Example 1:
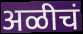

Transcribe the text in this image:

अळीचं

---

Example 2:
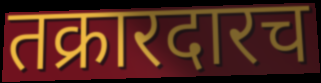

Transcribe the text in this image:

तक्रारदारच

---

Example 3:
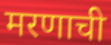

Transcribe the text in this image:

मरणाची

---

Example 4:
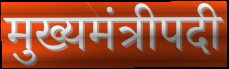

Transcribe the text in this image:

मुख्यमंत्रीपदी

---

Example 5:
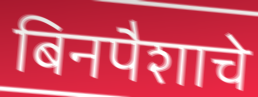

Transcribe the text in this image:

बिनपैशाचे